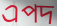
এপদ